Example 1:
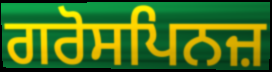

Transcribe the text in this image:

ਗਰੋਸਪਿਨਜ਼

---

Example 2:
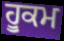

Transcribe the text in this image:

ਹੂਕਮ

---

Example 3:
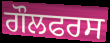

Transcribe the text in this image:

ਗੌਲਫਰਸ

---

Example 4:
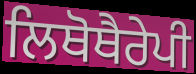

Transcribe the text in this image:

ਲਿਥੋਥੈਰੇਪੀ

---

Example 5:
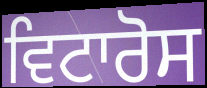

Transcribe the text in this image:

ਵਿਟਾਰੋਸ